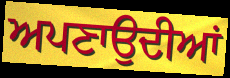
ਅਪਣਾਉਦੀਆਂ